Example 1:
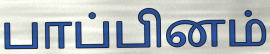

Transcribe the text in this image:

பாப்பினம்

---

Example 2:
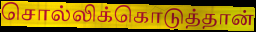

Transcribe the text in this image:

சொல்லிக்கொடுத்தான்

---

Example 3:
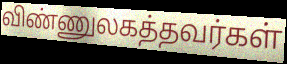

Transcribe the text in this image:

விண்ணுலகத்தவர்கள்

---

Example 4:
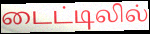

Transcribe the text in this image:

டைட்டிலில்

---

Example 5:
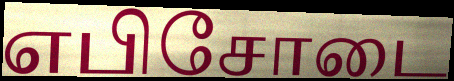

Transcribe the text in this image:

எபிசோடை